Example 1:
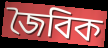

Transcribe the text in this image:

জৈবিক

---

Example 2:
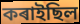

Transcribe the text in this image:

কৰাইছিল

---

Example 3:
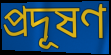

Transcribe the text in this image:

প্ৰদূষণ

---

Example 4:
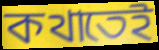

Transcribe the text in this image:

কথাতেই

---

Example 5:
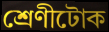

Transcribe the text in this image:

শ্ৰেণীটোক